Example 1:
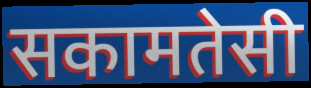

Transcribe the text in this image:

सकामतेसी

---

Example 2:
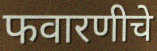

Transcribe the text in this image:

फवारणीचे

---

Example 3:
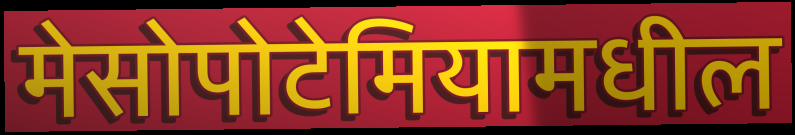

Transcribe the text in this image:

मेसोपोटेमियामधील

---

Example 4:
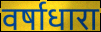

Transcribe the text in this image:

वर्षाधारा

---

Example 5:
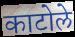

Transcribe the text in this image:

काटोले